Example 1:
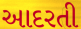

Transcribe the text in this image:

આદરતી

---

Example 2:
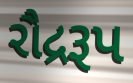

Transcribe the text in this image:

રૌદ્રરૂપ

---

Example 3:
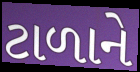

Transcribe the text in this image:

ટાળાને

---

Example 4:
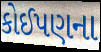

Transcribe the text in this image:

કોઈપણના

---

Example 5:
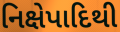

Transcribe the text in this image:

નિક્ષેપાદિથી